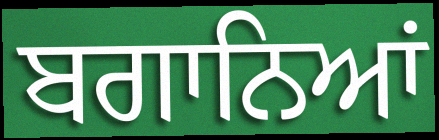
ਬਗਾਨਿਆਂ